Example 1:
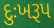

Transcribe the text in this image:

દુઃખરૂપ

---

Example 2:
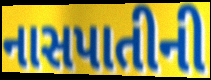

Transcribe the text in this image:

નાસપાતીની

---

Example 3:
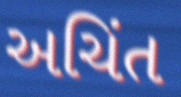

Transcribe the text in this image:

અચિંત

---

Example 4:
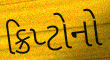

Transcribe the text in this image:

ક્રિપ્ટોનો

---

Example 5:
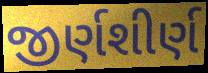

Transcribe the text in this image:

જીર્ણશીર્ણ